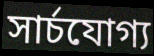
সার্চযোগ্য